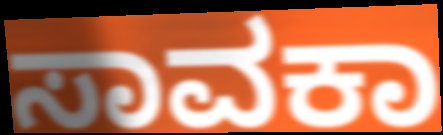
ಸಾವಕಾ